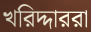
খরিদ্দাররা